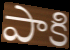
పాకి